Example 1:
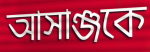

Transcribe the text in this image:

আসাঞ্জকে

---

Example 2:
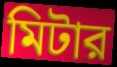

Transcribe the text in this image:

মিটার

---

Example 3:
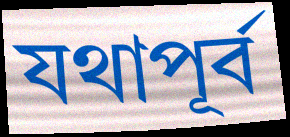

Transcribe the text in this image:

যথাপূর্ব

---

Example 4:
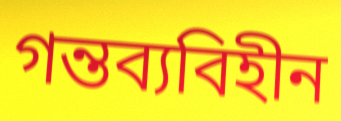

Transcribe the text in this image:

গন্তব্যবিহীন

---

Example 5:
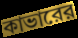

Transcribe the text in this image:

কাভারের